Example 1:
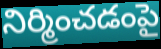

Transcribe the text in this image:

నిర్మించడంపై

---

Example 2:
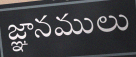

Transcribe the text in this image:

జ్ఞానములు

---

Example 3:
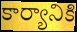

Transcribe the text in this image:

కార్యానికి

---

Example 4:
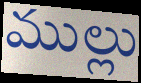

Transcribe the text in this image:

ముల్లు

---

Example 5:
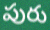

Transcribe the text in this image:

పురు